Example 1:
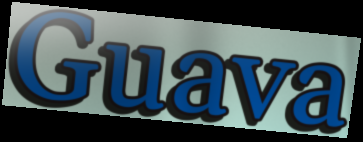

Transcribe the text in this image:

Guava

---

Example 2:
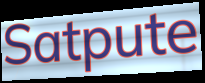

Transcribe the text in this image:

Satpute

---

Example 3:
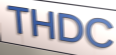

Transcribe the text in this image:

THDC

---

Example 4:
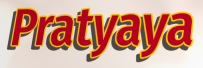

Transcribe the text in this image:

Pratyaya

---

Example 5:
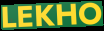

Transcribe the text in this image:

LEKHO